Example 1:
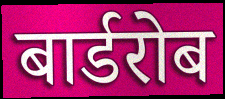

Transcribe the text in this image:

बार्डरोब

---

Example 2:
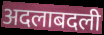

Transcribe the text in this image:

अदलाबदली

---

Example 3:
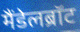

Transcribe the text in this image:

मैंडेलब्रॉट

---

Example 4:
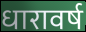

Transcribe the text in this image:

धारावर्ष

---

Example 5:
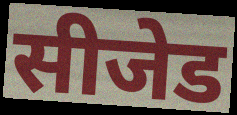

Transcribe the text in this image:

सीजेड